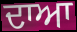
ਦਾਆ